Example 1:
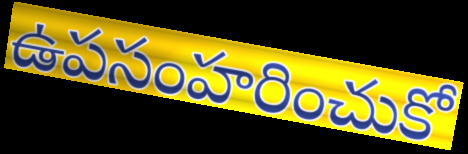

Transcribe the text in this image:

ఉపసంహరించుకో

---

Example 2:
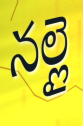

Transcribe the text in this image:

నల్లై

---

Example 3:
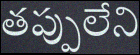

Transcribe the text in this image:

తప్పులేని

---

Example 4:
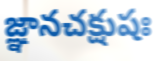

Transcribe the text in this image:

జ్ఞానచక్షుషః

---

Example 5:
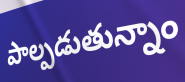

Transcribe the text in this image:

పాల్పడుతున్నాం